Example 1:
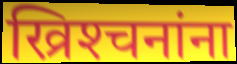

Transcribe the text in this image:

ख्रिश्‍चनांना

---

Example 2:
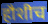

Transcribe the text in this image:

हौशीच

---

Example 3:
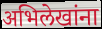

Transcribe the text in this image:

अभिलेखांना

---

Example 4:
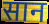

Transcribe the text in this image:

सान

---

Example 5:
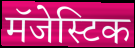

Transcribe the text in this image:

मॅजेस्टिक